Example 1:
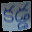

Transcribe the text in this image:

కడ్డ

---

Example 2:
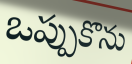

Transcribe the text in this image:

ఒప్పుకొను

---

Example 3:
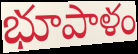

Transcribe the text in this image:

భూపాళం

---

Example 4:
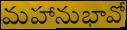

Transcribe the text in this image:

మహానుభావో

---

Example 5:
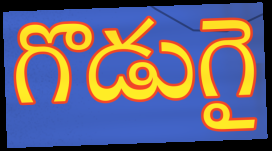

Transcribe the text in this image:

గొడుగై